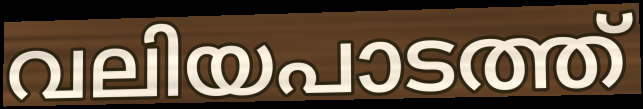
വലിയപാടത്ത്